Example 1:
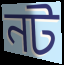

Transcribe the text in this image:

নট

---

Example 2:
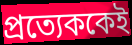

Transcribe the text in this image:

প্রত্যেককেই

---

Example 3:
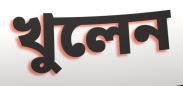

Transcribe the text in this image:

খুলেন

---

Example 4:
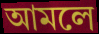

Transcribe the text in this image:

আমলে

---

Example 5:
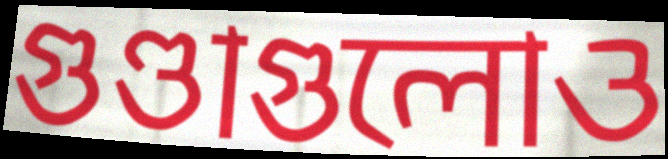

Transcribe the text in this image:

গুণ্ডাগুলোও